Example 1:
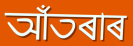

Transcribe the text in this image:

আঁতৰাৰ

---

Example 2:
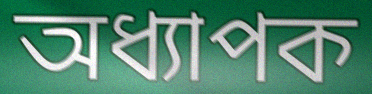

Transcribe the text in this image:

অধ্যাপক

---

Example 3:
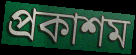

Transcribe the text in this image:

প্ৰকাশম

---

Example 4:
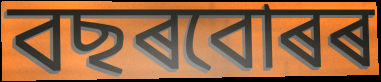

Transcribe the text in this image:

বছৰবোৰৰ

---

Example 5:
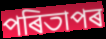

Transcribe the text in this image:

পৰিতাপৰ